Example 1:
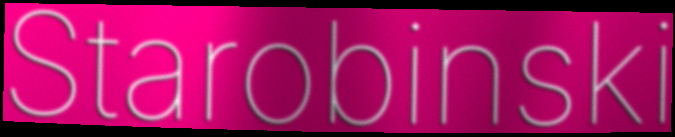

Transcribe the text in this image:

Starobinski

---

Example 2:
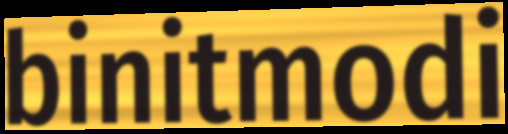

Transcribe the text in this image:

binitmodi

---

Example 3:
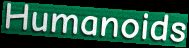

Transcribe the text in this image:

Humanoids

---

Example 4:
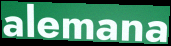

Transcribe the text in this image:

alemana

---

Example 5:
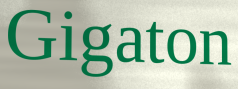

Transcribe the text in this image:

Gigaton